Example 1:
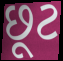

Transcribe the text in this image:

છૂટ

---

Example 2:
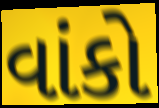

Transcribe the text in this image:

વાંકો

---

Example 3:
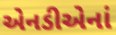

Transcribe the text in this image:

એનડીએનાં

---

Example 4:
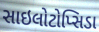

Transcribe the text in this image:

સાઇલોટોપ્સિડા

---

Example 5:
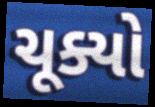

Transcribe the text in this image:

ચૂક્યો